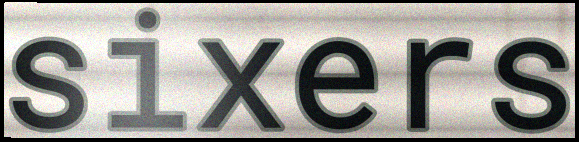
sixers